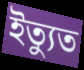
ইত্যুত